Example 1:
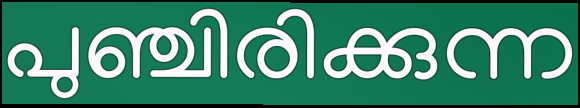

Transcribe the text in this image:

പുഞ്ചിരിക്കുന്ന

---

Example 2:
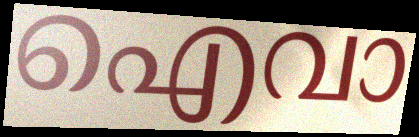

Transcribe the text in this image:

ഐവാ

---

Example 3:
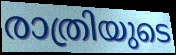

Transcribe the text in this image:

രാത്രിയുടെ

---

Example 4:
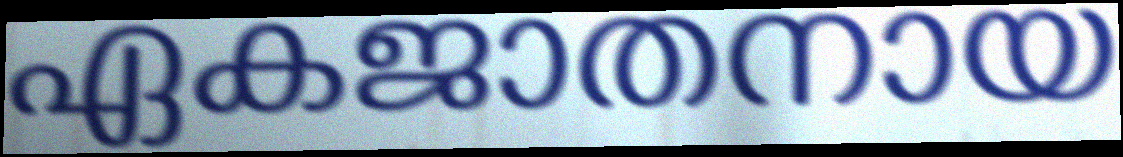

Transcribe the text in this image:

ഏകജാതനായ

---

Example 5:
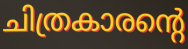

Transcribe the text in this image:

ചിത്രകാരന്റെ